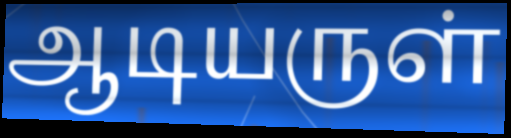
ஆடியருள்